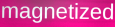
magnetized